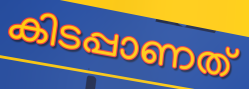
കിടപ്പാണത്